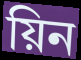
য়িন